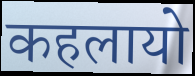
कहलायो